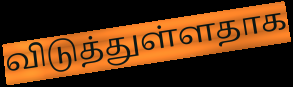
விடுத்துள்ளதாக